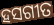
ହସଗୀତ